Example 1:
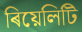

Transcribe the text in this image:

ৰিয়েলিটি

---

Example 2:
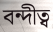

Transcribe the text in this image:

বন্দীত্ব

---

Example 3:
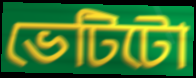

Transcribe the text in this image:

ভেটিটো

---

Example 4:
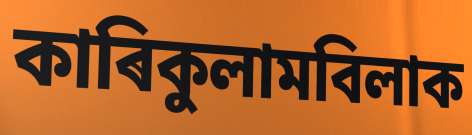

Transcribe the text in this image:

কাৰিকুলামবিলাক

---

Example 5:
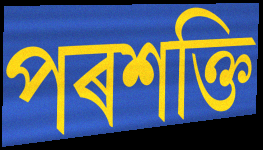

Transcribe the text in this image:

পৰশক্তি